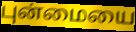
புன்மையை